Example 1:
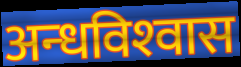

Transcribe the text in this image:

अन्‍धविश्‍वास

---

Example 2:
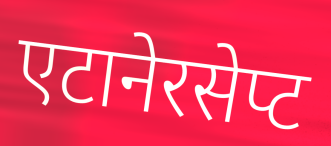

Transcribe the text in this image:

एटानेरसेप्ट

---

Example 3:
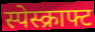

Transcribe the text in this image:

स्पेस्क्राफ्ट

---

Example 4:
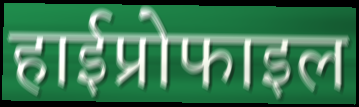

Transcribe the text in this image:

हाईप्रोफाइल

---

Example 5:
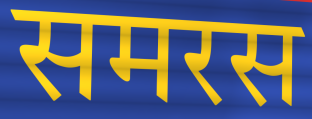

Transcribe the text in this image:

समरस